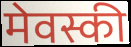
मेवस्की